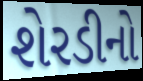
શેરડીનો